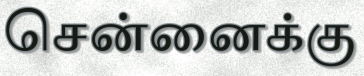
சென்னைக்கு